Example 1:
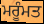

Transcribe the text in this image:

ਮਰੂੰਮਤ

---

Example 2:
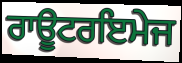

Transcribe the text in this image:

ਰਾਊਟਰਇਮੇਜ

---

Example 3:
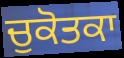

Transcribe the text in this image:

ਚੁਕੋਤਕਾ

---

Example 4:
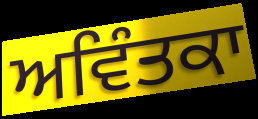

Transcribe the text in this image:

ਅਵਿੰਤਕਾ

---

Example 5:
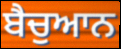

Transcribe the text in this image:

ਬੈਚੁਆਨ